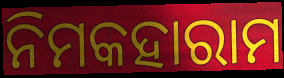
ନିମକହାରାମ